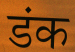
डंक